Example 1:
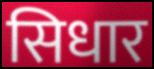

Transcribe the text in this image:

सिधार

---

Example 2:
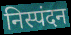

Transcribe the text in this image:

निस्पंदन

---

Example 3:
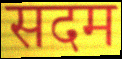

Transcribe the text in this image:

सदम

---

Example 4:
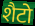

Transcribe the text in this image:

शैटो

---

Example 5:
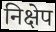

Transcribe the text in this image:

निक्षेप